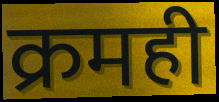
क्रमही